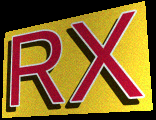
RX